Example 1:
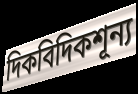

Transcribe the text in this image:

দিকবিদিকশূন্য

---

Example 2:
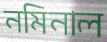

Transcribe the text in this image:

নমিনাল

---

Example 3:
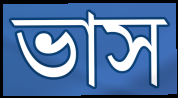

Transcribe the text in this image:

ভাস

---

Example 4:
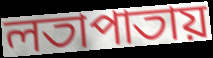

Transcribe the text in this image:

লতাপাতায়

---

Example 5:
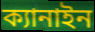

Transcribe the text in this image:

ক্যানাইন